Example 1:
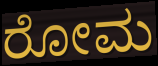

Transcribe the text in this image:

ರೋಮ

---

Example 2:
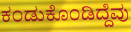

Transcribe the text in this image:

ಕಂಡುಕೊಂಡಿದ್ದೆವು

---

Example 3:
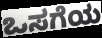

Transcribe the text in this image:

ಒಸಗೆಯ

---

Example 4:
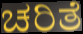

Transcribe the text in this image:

ಚರಿತೆ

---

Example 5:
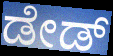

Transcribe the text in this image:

ಡೇಡ್